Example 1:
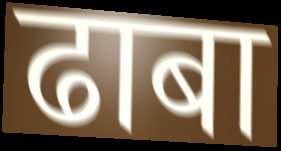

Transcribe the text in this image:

ढाबा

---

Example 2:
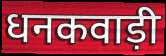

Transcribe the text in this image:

धनकवाड़ी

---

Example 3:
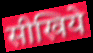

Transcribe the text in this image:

सीखिये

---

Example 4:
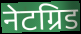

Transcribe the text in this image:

नेटग्रिड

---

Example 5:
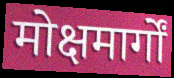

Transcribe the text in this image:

मोक्षमार्गों